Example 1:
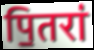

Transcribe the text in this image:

पि॒तरा॑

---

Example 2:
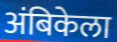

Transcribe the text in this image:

अंबिकेला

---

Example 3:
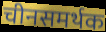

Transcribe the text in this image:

चीनसमर्थक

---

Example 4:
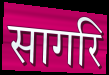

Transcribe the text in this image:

सागरि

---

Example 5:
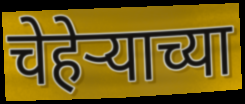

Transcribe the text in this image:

चेहेऱ्याच्या